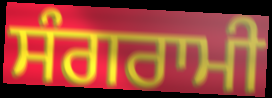
ਸੰਗਰਾਮੀ